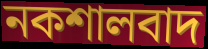
নকশালবাদ